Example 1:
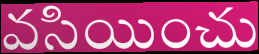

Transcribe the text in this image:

వసియించు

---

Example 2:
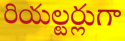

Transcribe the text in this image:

రియల్టర్లుగా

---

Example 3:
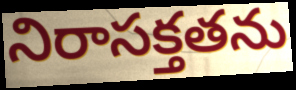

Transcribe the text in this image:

నిరాసక్తతను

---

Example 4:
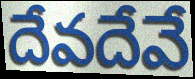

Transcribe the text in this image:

దేవదేవే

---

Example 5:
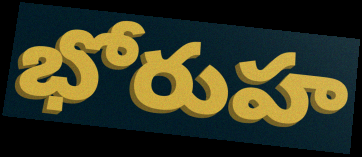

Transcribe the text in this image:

భోరుహ